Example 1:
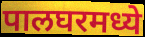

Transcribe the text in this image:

पालघरमध्ये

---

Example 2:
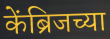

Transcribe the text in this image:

केंब्रिजच्या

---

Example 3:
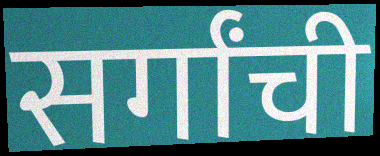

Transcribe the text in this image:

सर्गांची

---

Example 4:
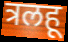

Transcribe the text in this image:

त्रलहू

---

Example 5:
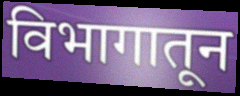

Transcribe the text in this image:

विभागातून